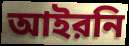
আইরনি